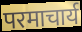
परमाचार्य